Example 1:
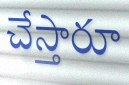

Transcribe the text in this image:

చేస్తారూ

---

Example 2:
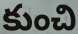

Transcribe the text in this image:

కుంచి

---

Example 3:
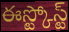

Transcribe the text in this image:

ఈస్ట్కోస్ట్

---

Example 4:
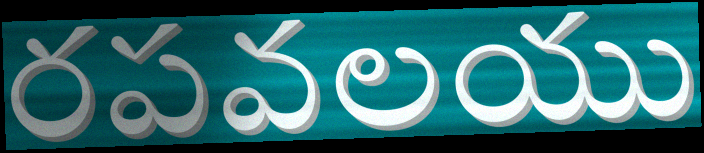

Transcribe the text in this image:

రపవలయు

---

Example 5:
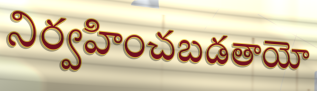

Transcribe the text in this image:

నిర్వహించబడతాయో